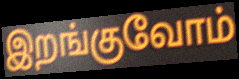
இறங்குவோம்